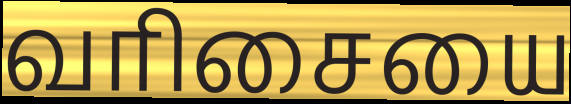
வரிசையை